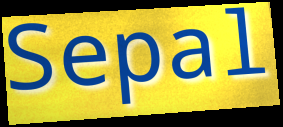
Sepal